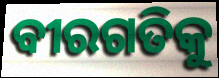
ବୀରଗତିକୁ